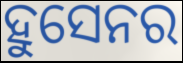
ହୁସେନର